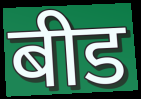
बीड